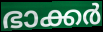
ഭാക്കർ